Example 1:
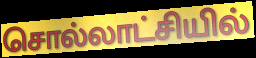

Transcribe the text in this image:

சொல்லாட்சியில்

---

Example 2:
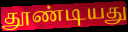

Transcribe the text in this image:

தூண்டியது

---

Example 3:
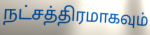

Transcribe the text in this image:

நட்சத்திரமாகவும்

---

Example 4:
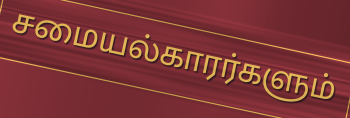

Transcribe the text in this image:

சமையல்காரர்களும்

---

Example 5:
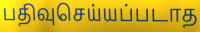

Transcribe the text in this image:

பதிவுசெய்யப்படாத